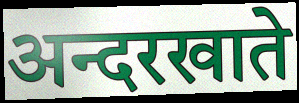
अन्दरखाते